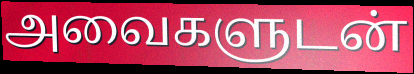
அவைகளுடன்